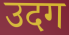
उदग